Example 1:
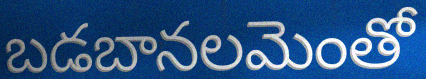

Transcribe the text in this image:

బడబానలమెంతో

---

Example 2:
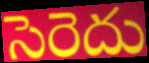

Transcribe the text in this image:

సెరెదు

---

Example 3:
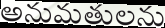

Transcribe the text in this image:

అనుమతులను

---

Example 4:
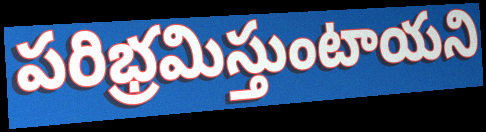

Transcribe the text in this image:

పరిభ్రమిస్తుంటాయని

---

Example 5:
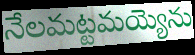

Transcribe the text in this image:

నేలమట్టమయ్యెను